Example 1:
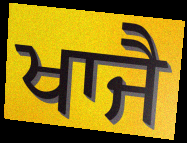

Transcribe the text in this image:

ਖਾਜੈ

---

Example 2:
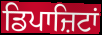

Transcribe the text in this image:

ਡਿਪਾਜ਼ਿਟਾਂ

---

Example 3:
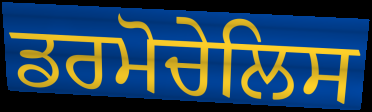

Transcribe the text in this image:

ਡਰਮੋਚੇਲਿਸ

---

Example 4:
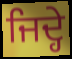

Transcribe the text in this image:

ਜਿਦ੍ਹੇ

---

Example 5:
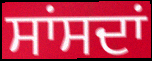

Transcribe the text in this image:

ਸਾਂਸਦਾਂ